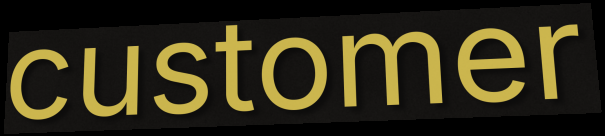
customer